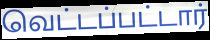
வெட்டப்பட்டார்